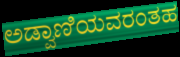
ಅಡ್ವಾಣಿಯವರಂತಹ